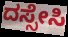
ದಸ್ಸೇಸಿ